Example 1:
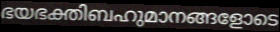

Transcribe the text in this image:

ഭയഭക്തിബഹുമാനങ്ങളോടെ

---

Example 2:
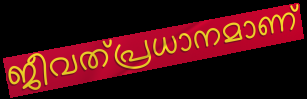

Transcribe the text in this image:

ജീവത്പ്രധാനമാണ്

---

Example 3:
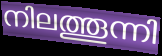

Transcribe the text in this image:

നിലത്തൂന്നി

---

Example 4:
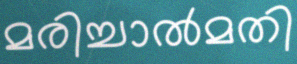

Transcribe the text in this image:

മരിച്ചാൽമതി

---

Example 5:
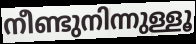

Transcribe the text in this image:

നീണ്ടുനിന്നുള്ളൂ